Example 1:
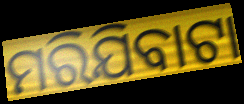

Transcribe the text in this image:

ମରିଯିବାଟା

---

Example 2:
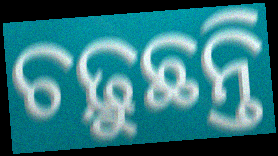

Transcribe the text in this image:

ଚଢ଼ୁଛନ୍ତି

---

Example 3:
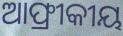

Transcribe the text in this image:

ଆଫ୍ରୀକୀୟ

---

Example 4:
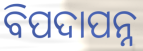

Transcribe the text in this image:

ବିପଦାପନ୍ନ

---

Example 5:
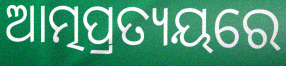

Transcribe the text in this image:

ଆତ୍ମପ୍ରତ୍ୟୟରେ